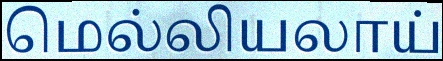
மெல்லியலாய்